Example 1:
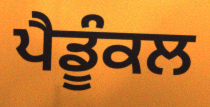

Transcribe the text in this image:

ਪੈਡੂੰਕਲ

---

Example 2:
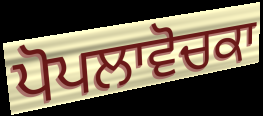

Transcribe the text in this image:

ਪੋਪਲਾਵੋਚਕਾ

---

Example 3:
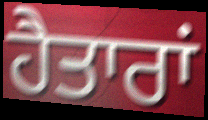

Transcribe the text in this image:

ਹੈਤਾਰਾਂ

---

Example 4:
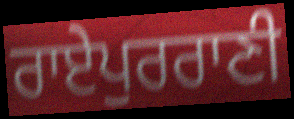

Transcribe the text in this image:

ਰਾਏਪੁਰਰਾਣੀ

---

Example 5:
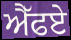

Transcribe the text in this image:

ਐੱਫਏ